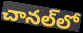
చానల్‌లో